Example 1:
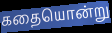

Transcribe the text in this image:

கதையொன்று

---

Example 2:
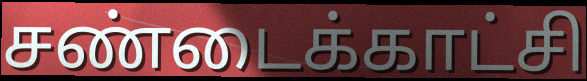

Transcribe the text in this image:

சண்டைக்காட்சி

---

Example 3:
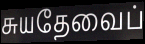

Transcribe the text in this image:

சுயதேவைப்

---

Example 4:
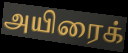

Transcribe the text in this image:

அயிரைக்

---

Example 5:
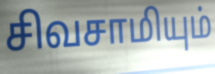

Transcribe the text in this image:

சிவசாமியும்